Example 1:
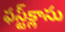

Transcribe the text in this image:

ఫస్ట్‌క్లాసు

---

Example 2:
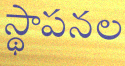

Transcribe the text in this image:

స్థాపనల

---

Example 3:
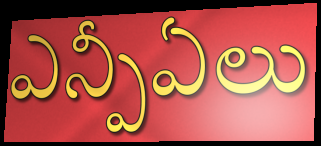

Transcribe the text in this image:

ఎన్పీఏలు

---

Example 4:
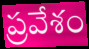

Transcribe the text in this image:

ప్రవేశం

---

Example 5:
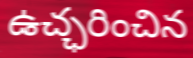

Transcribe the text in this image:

ఉచ్ఛరించిన